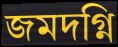
জমদগ্নি